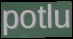
potlu